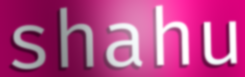
shahu